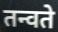
तन्वते